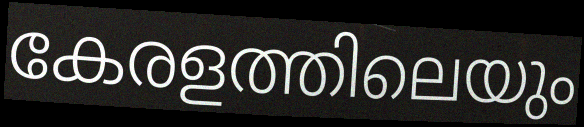
കേരളത്തിലെയും